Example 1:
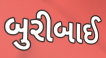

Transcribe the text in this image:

બુરીબાઈ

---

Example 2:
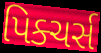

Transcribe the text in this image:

પિક્ચર્સ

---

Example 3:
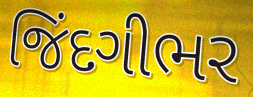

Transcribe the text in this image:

જિંદગીભર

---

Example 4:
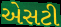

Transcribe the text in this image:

એસટી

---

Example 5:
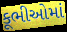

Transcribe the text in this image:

કૂભીઓમાં